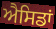
ਐਸਿਡਾਂ